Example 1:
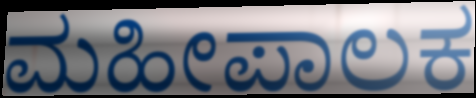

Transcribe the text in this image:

ಮಹೀಪಾಲಕ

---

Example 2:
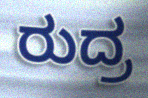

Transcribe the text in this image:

ರುದ್ರ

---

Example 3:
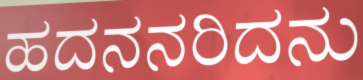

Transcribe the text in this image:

ಹದನನರಿದನು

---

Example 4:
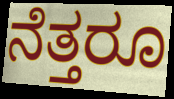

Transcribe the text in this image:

ನೆತ್ತರೂ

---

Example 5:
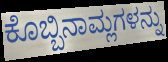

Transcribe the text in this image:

ಕೊಬ್ಬಿನಾಮ್ಲಗಳನ್ನು